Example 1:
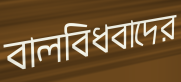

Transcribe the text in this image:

বালবিধবাদের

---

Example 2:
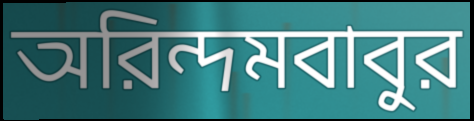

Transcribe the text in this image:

অরিন্দমবাবুর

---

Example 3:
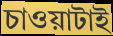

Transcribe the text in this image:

চাওয়াটাই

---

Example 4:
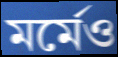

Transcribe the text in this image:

মর্মেও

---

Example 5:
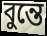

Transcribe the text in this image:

বুন্তে